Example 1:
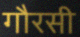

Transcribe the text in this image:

गौरसी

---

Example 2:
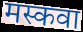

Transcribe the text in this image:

मस्कवा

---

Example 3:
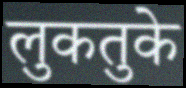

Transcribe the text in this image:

लुकतुके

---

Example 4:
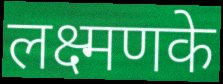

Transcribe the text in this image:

लक्ष्मणके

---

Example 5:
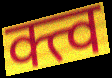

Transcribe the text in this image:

क्त्व